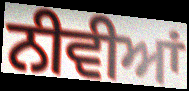
ਨੀਵੀਆਂ